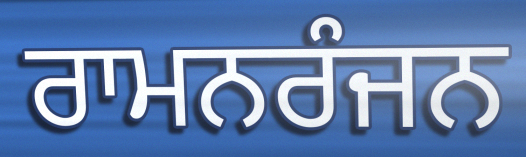
ਰਾਮਨਰੰਜਨ